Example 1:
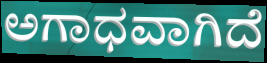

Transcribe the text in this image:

ಅಗಾಧವಾಗಿದೆ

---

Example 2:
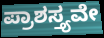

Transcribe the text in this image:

ಪ್ರಾಶಸ್ತ್ಯವೇ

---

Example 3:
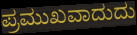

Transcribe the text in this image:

ಪ್ರಮುಖವಾದುದು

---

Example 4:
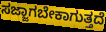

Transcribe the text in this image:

ಸಜ್ಜಾಗಬೇಕಾಗುತ್ತದೆ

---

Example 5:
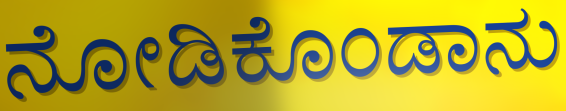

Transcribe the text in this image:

ನೋಡಿಕೊಂಡಾನು